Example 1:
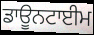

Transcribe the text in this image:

ਡਾਊਨਟਾਈਮ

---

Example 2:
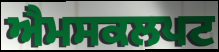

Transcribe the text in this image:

ਐਮਸਕਲਪਟ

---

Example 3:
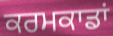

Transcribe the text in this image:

ਕਰਮਕਾਡਾਂ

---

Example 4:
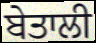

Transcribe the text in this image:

ਬੇਤਾਲੀ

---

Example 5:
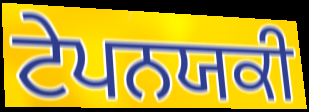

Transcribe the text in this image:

ਟੇਪਨਯਕੀ